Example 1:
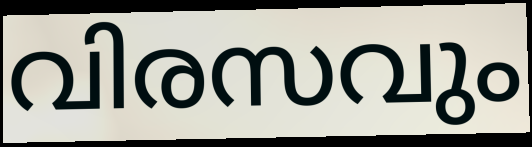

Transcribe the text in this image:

വിരസവും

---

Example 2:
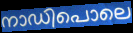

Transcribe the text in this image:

നാഡിപൊലെ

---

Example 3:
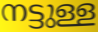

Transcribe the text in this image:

നട്ടുള്ള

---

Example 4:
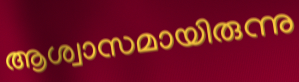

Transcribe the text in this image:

ആശ്വാസമായിരുന്നു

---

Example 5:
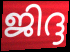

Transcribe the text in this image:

ജിദ്ദ